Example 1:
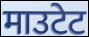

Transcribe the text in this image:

माउटेट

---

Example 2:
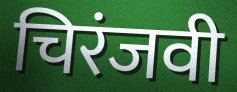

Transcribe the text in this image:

चिरंजवी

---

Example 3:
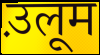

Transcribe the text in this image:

उ़लूम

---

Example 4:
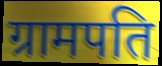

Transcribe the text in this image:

ग्रामपति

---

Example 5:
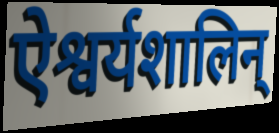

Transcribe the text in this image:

ऐश्वर्यशालिन्